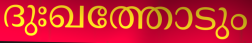
ദുഃഖത്തോടും